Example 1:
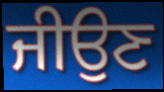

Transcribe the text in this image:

ਜੀਉਣ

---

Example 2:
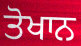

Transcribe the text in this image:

ਤੋਖਾਨ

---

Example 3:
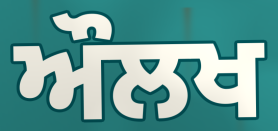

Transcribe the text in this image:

ਔਲਖ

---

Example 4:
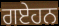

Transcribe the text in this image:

ਗਏਹਨ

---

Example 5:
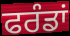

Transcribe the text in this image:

ਫਰੰਡਾਂ